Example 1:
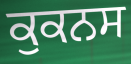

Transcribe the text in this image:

ਕੁਕਨਸ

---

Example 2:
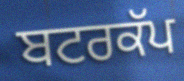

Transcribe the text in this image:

ਬਟਰਕੱਪ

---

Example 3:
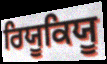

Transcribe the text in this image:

ਰਿਯੂਕਿਯੂ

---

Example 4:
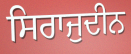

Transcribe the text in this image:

ਸਿਰਾਜੁਦੀਨ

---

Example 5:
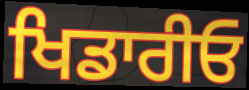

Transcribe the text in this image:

ਖਿਡਾਰੀਓ